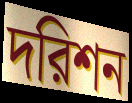
দরিশন